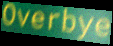
Overbye